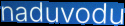
naduvodu